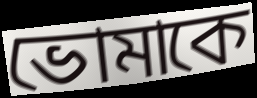
ভোমাকে